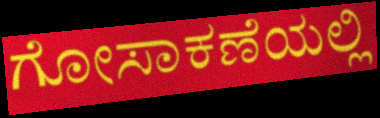
ಗೋಸಾಕಣೆಯಲ್ಲಿ